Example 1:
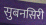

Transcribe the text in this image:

सुबनसिरी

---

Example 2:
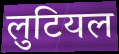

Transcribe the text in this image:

लुटियल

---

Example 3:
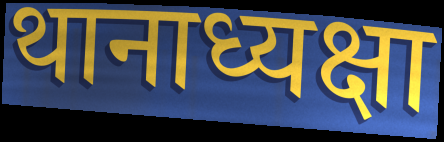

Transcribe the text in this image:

थानाध्यक्षा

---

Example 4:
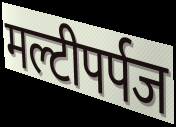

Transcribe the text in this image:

मल्टीपर्पज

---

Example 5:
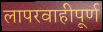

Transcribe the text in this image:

लापरवाहीपूर्ण